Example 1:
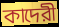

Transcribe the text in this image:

কাদেরী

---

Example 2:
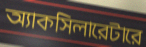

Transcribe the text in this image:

অ্যাকসিলারেটারে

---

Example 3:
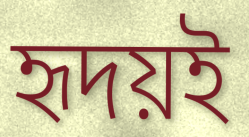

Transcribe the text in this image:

হৃদয়ই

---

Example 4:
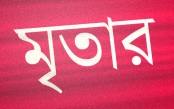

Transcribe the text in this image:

মৃতার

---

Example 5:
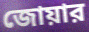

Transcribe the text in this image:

জোয়ার